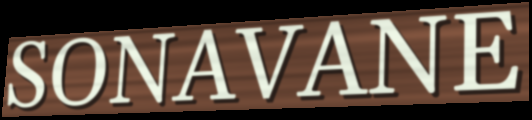
SONAVANE